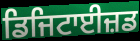
ਡਿਜਿਟਾਈਜ਼ਡ